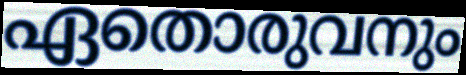
ഏതൊരുവനും